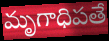
మృగాధిపతే